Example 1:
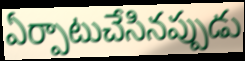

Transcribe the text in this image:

ఏర్పాటుచేసినప్పుడు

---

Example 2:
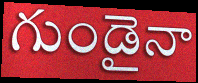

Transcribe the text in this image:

గుండైనా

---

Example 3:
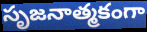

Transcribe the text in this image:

సృజనాత్మకంగా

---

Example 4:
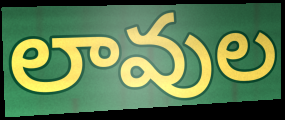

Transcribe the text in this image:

లావుల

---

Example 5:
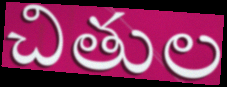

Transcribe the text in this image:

చితుల